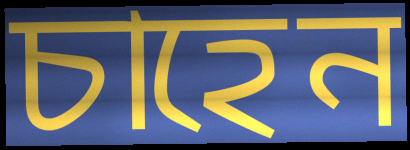
চাহেন